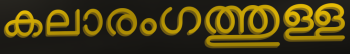
കലാരംഗത്തുള്ള